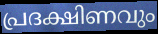
പ്രദക്ഷിണവും